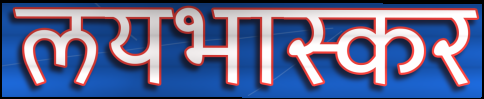
लयभास्कर